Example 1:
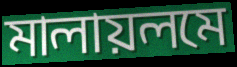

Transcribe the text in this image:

মালায়লমে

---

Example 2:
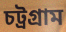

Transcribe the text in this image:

চট্রগ্রাম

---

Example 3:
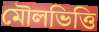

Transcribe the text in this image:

মৌলভিত্তি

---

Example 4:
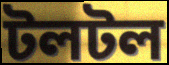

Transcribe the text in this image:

টলটল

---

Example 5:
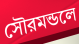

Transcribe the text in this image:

সৌরমন্ডলে